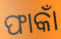
ଫାକାଁ